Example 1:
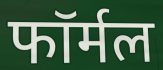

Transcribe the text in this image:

फॉर्मल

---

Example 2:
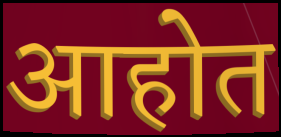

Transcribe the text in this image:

आहोत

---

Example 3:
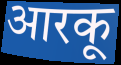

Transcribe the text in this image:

आरकू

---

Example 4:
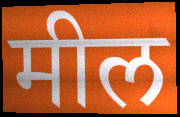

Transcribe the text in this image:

मील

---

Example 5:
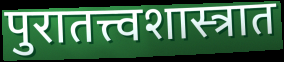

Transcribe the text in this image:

पुरातत्त्वशास्त्रात